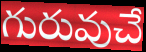
గురువుచే